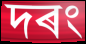
দৰং